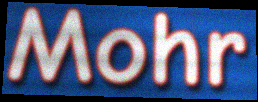
Mohr